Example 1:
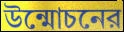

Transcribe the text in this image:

উন্মোচনের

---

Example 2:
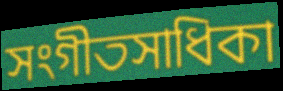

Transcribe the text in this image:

সংগীতসাধিকা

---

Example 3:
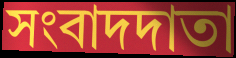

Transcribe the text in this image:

সংবাদদাতা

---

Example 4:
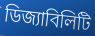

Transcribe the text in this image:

ডিজ্যাবিলিটি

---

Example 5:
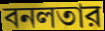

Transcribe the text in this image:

বনলতার